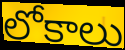
లోకాలు